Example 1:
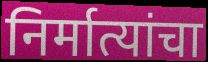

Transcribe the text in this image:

निर्मात्यांचा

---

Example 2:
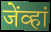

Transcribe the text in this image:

जेंव्हां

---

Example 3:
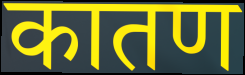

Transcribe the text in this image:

कातण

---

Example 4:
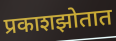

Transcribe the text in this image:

प्रकाशझोतात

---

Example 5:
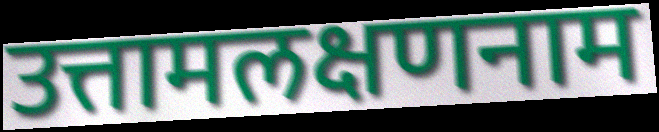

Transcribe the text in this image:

उत्तामलक्षणनाम